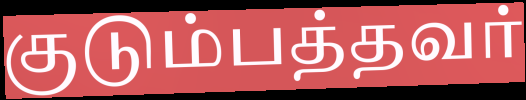
குடும்பத்தவர்